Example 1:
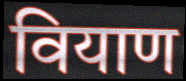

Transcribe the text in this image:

वियाण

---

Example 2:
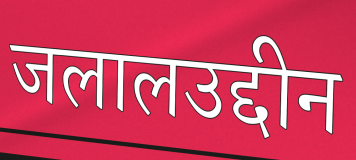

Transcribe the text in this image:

जलालउद्दीन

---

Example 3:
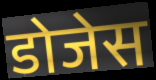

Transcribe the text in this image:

डोजेस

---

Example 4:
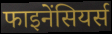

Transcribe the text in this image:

फाइनेंसियर्स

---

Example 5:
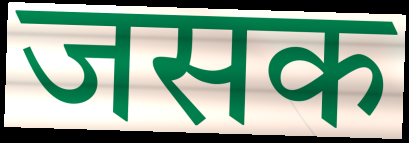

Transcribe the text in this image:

जसक